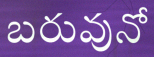
బరువునో